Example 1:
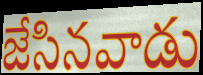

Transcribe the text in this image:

జేసినవాడు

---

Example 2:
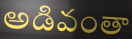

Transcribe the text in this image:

అడివంతా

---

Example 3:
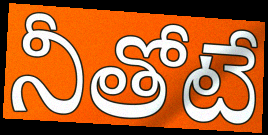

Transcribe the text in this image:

నీతోటే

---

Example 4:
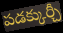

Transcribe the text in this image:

పడక్కుర్చీ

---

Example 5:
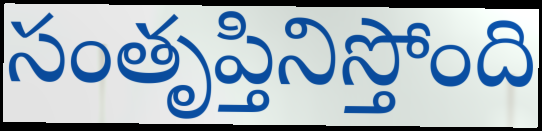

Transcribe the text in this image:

సంతృప్తినిస్తోంది